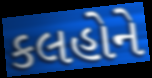
કલહોને